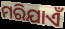
ମରିଯାଏଁ